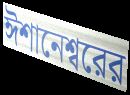
ঈশানেশ্বরের